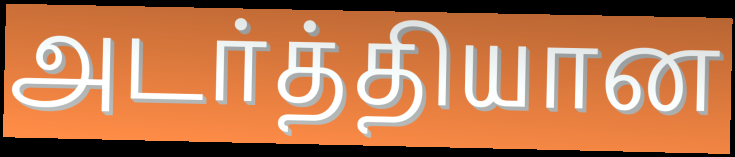
அடர்த்தியான